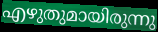
എഴുതുമായിരുന്നു